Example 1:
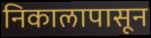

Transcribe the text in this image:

निकालापासून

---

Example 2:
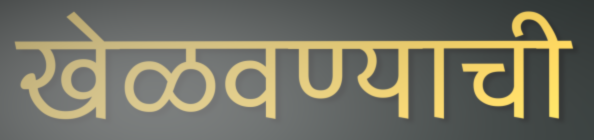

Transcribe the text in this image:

खेळवण्याची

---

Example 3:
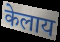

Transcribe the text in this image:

केलाय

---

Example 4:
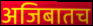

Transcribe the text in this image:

अजिबातच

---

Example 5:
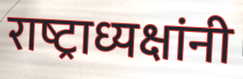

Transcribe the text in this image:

राष्ट्राध्यक्षांनी